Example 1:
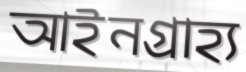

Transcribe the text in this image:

আইনগ্রাহ্য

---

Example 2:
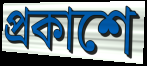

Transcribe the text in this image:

প্রকাশে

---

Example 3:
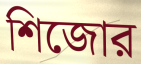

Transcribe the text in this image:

শিজোর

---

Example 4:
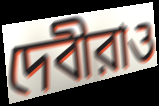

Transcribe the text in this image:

দেবীরাও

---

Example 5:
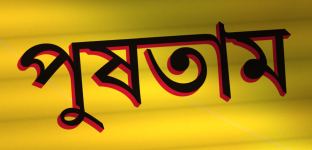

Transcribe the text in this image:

পুষতাম